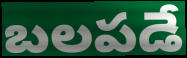
బలపడే